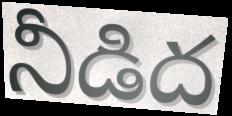
నీడిద